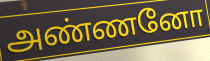
அண்ணனோ